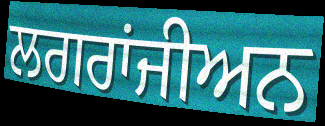
ਲਗਰਾਂਜੀਅਨ